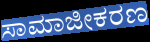
ಸಾಮಾಜೀಕರಣ